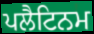
ਪਲੈਟਿਨਮ